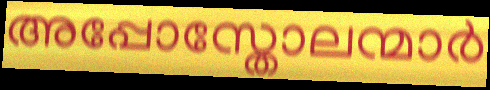
അപ്പോസ്തോലന്മാർ